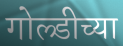
गोल्डीच्या